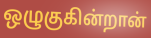
ஒழுகுகின்றான்